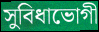
সুবিধাভোগী